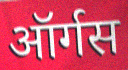
ऑर्गस